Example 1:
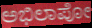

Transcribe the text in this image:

ಅಭಿಲಾಪೋ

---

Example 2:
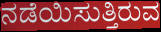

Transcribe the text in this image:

ನಡೆಯಿಸುತ್ತಿರುವ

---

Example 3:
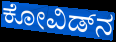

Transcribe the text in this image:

ಕೋವಿಡ್‌ನ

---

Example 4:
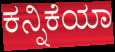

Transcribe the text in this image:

ಕನ್ನಿಕೆಯಾ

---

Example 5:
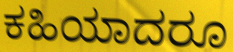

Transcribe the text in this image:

ಕಹಿಯಾದರೂ